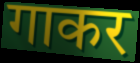
गाकर